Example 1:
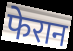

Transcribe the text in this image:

फेरान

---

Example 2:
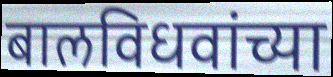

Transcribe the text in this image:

बालविधवांच्या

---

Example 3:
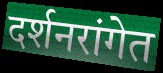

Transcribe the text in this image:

दर्शनरांगेत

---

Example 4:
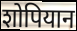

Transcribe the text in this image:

शोपियान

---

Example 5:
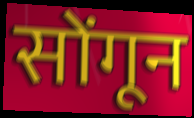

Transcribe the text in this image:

सोंगून